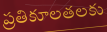
ప్రతికూలతలకు